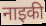
नाइकी